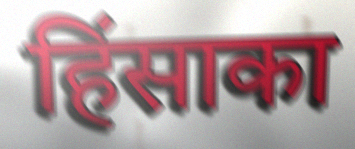
हिंसाका